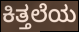
ಕಿತ್ತಲೆಯ